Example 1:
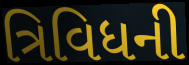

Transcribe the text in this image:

ત્રિવિધની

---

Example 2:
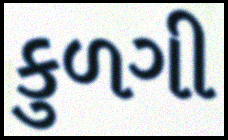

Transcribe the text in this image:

કુળગી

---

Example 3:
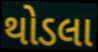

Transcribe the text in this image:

થોડલા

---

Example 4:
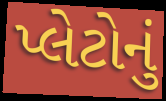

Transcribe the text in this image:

પ્લેટોનું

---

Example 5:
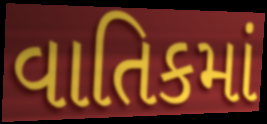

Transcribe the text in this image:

વાતિકમાં